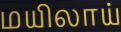
மயிலாய்